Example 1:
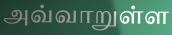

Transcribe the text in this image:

அவ்வாறுள்ள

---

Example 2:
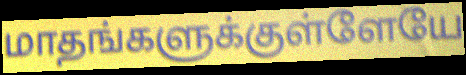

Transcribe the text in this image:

மாதங்களுக்குள்ளேயே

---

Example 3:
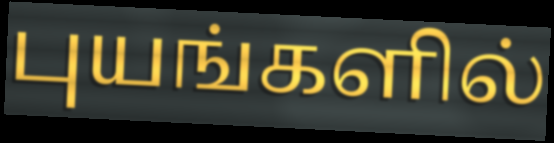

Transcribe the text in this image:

புயங்களில்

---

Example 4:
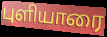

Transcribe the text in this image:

புளியாரை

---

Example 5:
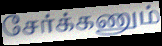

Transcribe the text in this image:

சேர்க்கணும்